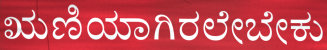
ಋಣಿಯಾಗಿರಲೇಬೇಕು